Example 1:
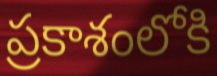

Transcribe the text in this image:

ప్రకాశంలోకి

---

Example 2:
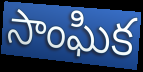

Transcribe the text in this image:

సాంఘిక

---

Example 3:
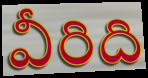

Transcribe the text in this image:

వీరిది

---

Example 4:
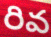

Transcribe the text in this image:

రివ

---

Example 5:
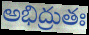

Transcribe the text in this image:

అభిద్రుతః